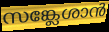
സങ്ക്ലേശാൻ